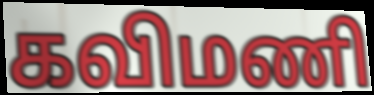
கவிமணி